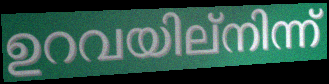
ഉറവയില്നിന്ന്